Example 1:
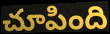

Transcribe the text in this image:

చూపింది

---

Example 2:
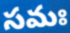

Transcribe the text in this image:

సమః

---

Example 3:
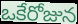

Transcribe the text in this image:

ఒకేరోజున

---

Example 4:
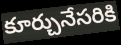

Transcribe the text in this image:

కూర్చునేసరికి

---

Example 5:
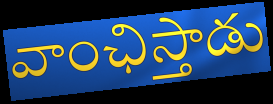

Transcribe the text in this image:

వాంఛిస్తాడు